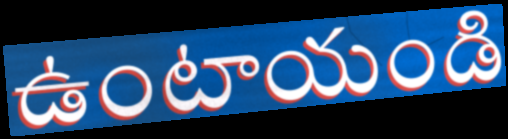
ఉంటాయండి